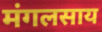
मंगलसाय